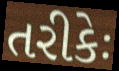
તરીકેઃ